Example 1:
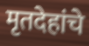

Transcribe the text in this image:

मृतदेहांचे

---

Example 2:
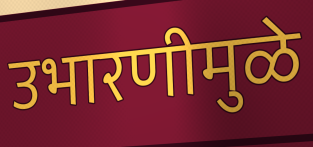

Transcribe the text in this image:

उभारणीमुळे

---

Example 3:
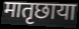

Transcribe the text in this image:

मातृछाया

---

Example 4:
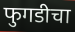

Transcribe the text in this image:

फुगडीचा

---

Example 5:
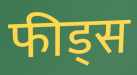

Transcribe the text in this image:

फीड्स